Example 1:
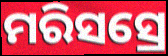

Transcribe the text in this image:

ମରିସସ୍ରେ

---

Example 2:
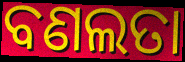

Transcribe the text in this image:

ବଣଲତା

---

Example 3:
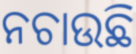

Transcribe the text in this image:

ନଚାଉଛି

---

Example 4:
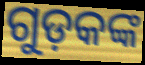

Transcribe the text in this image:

ଗୁଡ଼କଙ୍କ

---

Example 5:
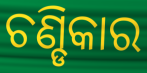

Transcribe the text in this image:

ଚଣ୍ଡିକାର